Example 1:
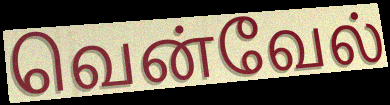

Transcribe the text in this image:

வென்வேல்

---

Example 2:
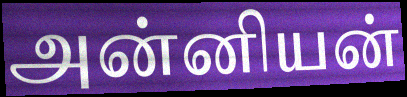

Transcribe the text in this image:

அன்னியன்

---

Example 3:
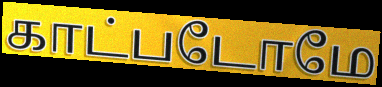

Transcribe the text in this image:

காட்படோமே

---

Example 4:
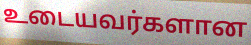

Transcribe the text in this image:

உடையவர்களான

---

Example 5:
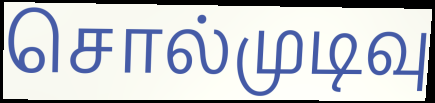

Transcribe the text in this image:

சொல்முடிவு